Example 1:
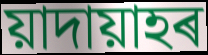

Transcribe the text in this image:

য়াদায়াহৰ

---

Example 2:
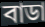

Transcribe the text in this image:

বাডা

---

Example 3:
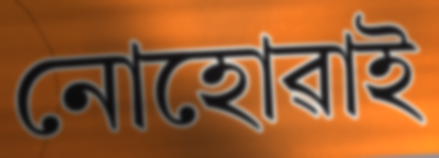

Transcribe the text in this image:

নোহোৱাই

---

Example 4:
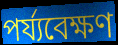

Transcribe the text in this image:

পৰ্য্যবেক্ষণ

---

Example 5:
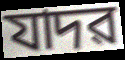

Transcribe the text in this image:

যাদৱ